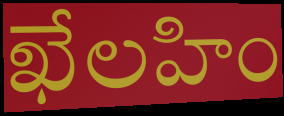
ఖేలహిం